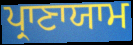
ਪ੍ਰਾਣਾਯਾਮ